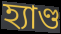
হ্যাণ্ড